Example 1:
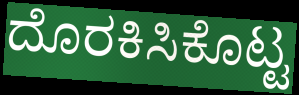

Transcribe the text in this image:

ದೊರಕಿಸಿಕೊಟ್ಟ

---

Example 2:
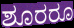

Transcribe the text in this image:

ಶೂರರೂ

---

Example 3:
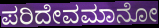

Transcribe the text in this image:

ಪರಿದೇವಮಾನೋ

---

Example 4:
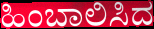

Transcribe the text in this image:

ಹಿಂಬಾಲಿಸಿದ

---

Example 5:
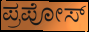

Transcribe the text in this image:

ಪ್ರಪೋಸ್